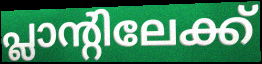
പ്ലാന്റിലേക്ക്